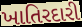
ખાતિરદારી